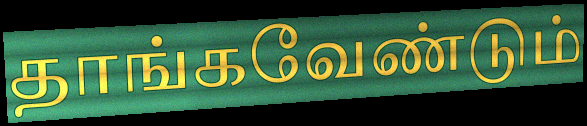
தாங்கவேண்டும்